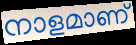
നാളമാണ്